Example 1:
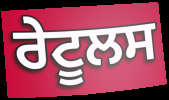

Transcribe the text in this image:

ਰੇਟੂਲਸ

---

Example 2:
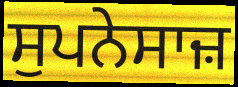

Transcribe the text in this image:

ਸੁਪਨੇਸਾਜ਼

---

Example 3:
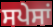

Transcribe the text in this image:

ਸਪੇਸਾਂ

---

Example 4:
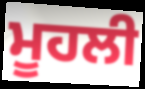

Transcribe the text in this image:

ਮੂਹਲੀ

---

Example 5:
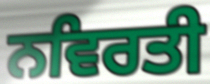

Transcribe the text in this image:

ਨਵਿਰਤੀ